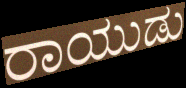
ರಾಯುಡು